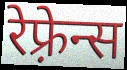
रेफ़्रेन्स